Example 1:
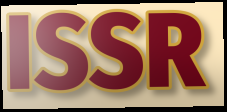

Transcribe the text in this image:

ISSR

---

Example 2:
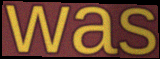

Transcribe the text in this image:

was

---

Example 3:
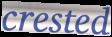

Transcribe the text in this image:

crested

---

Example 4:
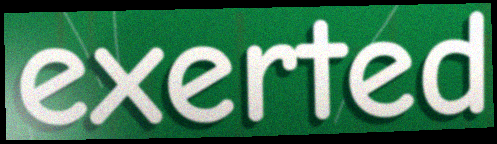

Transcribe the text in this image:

exerted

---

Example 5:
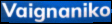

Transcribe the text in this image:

Vaignaniko